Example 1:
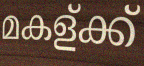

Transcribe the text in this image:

മകള്ക്ക്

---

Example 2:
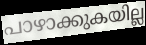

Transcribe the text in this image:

പാഴാക്കുകയില്ല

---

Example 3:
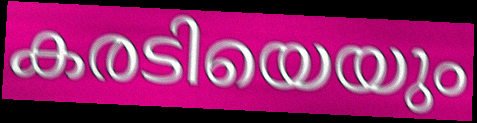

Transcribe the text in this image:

കരടിയെയും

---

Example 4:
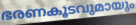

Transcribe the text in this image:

ഭരണകൂടവുമായും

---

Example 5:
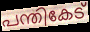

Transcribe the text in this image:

പന്തികേട്